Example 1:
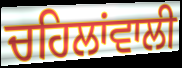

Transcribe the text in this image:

ਚਹਿਲਾਂਵਾਲੀ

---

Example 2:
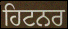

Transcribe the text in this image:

ਹਿਟਨਰ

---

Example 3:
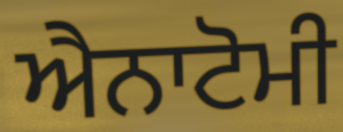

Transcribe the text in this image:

ਐਨਾਟੋਮੀ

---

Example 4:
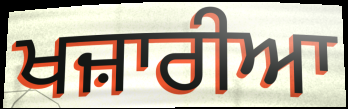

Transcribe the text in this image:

ਖਜ਼ਾਰੀਆ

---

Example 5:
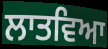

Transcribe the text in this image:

ਲਾਤਵਿਆ